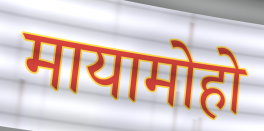
मायामोहो